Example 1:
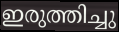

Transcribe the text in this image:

ഇരുത്തിച്ചു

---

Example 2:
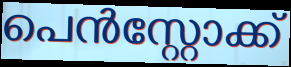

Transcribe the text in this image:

പെൻസ്റ്റോക്ക്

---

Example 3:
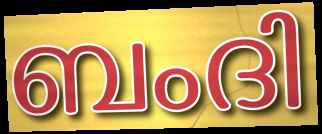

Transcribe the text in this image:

ബംദി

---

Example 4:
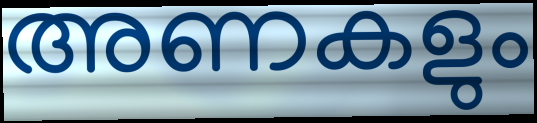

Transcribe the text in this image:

അണകളും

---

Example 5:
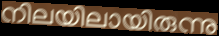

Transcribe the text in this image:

നിലയിലായിരുന്നു